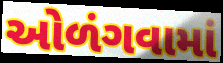
ઓળંગવામાં